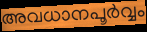
അവധാനപൂർവ്വം